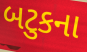
બટુકના